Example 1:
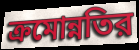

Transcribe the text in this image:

ক্রমোন্নতির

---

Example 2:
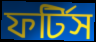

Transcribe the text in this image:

ফর্টিস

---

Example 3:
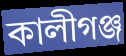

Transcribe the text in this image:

কালীগঞ্জ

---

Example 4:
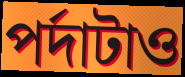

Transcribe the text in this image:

পর্দাটাও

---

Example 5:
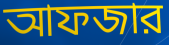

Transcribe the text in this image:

আফজার